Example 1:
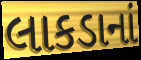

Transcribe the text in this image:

લાકડાનાં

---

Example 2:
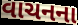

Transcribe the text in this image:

વાચનના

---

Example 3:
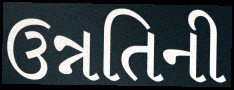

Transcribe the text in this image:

ઉન્નતિની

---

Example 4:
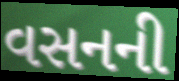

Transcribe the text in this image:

વસનની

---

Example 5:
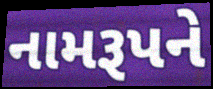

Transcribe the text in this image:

નામરૂપને